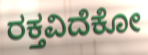
ರಕ್ತವಿದೆಕೋ